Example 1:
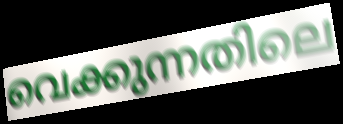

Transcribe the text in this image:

വെക്കുന്നതിലെ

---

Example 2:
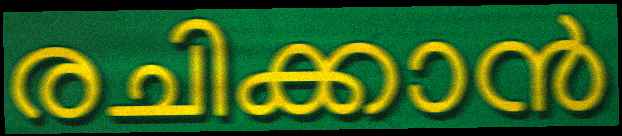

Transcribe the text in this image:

രചിക്കാൻ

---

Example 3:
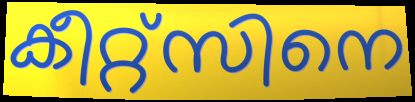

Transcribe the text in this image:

കീറ്റ്സിനെ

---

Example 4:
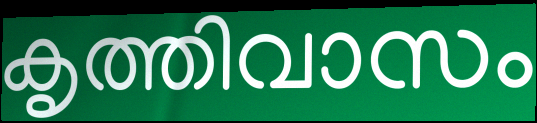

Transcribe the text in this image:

കൃത്തിവാസം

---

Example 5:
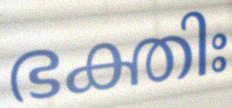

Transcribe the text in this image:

ഭക്തിഃ